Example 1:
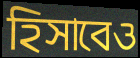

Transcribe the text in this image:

হিসাবেও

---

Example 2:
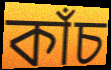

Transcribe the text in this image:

কাঁচ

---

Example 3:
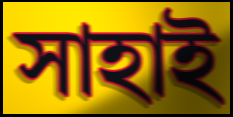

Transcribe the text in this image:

সাহাই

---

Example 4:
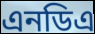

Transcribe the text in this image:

এনডিএ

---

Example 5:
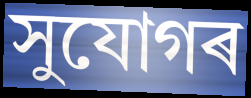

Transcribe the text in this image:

সুযোগৰ